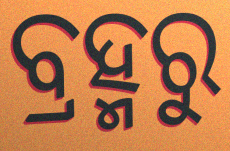
ବ୍ରହ୍ମରୁ